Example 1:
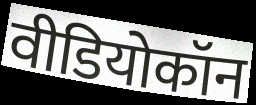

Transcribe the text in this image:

वीडियोकॉन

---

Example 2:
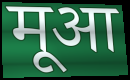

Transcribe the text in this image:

मूआ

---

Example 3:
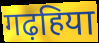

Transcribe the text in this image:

गढ़हिया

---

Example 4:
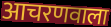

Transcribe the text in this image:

आचरणवाला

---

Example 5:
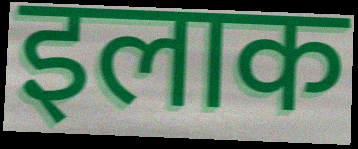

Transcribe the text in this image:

इलाक